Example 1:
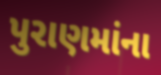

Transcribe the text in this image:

પુરાણમાંના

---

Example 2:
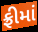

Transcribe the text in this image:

ફ્રીમાં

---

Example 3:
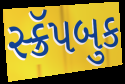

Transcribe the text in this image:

સ્ક્રૅપબુક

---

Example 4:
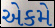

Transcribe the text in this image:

એકમે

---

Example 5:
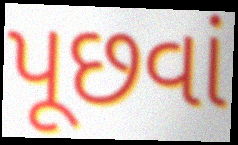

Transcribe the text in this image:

પૂછવાં